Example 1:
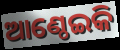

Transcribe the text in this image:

ଆଣ୍ଠେଇକି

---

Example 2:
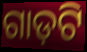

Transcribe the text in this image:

ଗାଡ଼ଟି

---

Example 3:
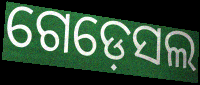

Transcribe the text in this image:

ଗେଡ଼େସଲ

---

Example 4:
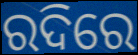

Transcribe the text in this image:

ରଦିରେ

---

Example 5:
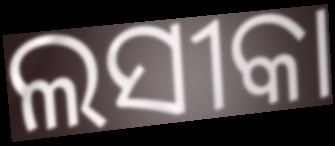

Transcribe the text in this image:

ଲସୀକା